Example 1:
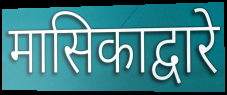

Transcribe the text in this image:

मासिकाद्वारे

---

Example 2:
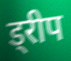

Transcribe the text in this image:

ड्रीप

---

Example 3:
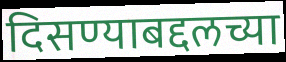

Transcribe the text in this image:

दिसण्याबद्दलच्या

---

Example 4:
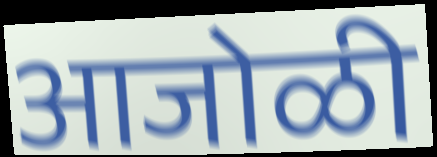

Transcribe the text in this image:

आजोळी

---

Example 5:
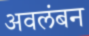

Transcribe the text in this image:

अवलंबन